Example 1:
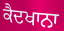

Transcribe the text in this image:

ਕੈਦਖਾਨਾ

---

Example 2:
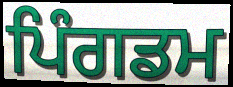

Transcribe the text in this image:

ਪਿੰਗਡਮ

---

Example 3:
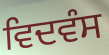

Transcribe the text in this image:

ਵਿਦਵੰਸ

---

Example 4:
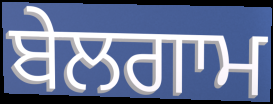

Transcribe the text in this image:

ਬੇਲਗਾਮ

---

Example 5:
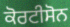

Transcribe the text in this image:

ਕੋਰਟੀਸੋਨ